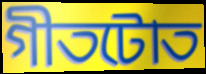
গীতটোত